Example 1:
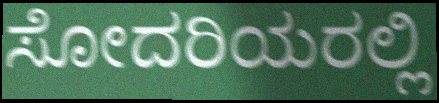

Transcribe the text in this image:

ಸೋದರಿಯರಲ್ಲಿ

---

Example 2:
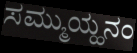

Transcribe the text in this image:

ಸಮ್ಮುಯ್ಹನಂ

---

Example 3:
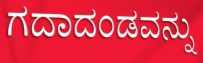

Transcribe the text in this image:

ಗದಾದಂಡವನ್ನು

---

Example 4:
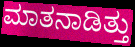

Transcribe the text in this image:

ಮಾತನಾಡಿತ್ತು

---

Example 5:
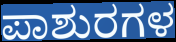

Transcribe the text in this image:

ಪಾಶುರಗಳ